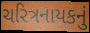
ચરિત્રનાયકનું